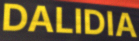
DALIDIA